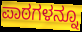
ಪಾಠಗಳನ್ನೂ